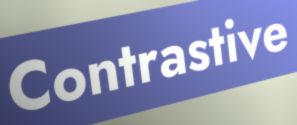
Contrastive